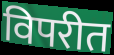
विपरीत